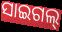
ସାଇଗଲ୍